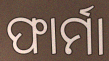
ଫାର୍ମା